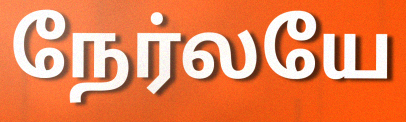
நேர்லயே